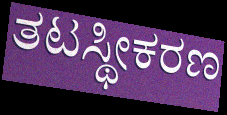
ತಟಸ್ಥೀಕರಣ